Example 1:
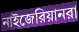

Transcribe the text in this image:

নাইজেরিয়ানরা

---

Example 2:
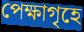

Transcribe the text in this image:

পেক্ষাগৃহে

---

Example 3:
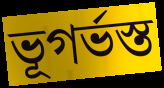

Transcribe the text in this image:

ভূগর্ভস্ত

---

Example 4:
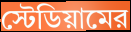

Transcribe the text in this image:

স্টেডিয়ামের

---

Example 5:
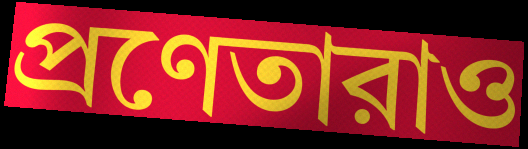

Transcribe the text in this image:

প্রণেতারাও